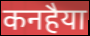
कनहैया